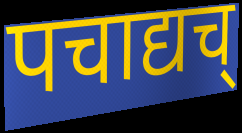
पचाद्यच्